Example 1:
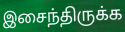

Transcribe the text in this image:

இசைந்திருக்க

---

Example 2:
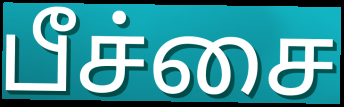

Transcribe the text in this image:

பீச்சை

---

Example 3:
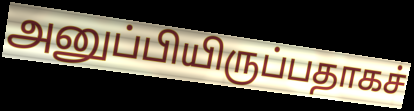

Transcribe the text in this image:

அனுப்பியிருப்பதாகச்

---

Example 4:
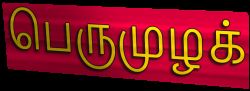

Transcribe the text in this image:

பெருமுழக்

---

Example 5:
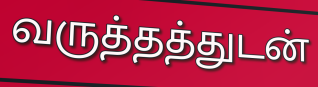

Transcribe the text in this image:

வருத்தத்துடன்